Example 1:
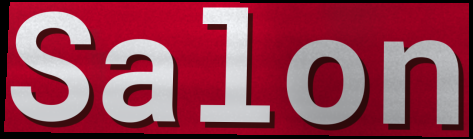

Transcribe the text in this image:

Salon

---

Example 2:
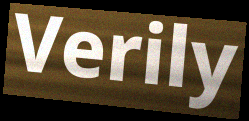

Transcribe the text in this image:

Verily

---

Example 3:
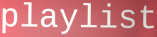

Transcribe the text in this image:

playlist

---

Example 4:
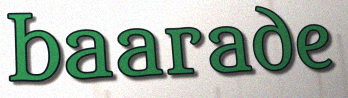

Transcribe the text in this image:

baarade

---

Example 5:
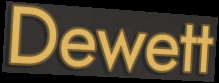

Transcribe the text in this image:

Dewett